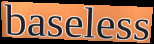
baseless